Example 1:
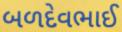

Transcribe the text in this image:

બળદેવભાઈ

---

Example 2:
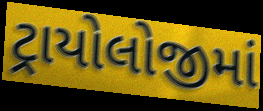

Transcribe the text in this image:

ટ્રાયોલોજીમાં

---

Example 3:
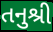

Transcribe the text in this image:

તનુશ્રી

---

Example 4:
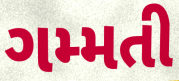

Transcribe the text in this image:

ગમ્મતી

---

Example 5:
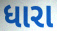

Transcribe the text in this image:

ધારા